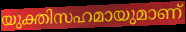
യുക്തിസഹമായുമാണ്